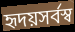
হৃদয়সর্বস্ব